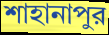
শাহানাপুর